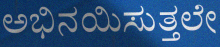
ಅಭಿನಯಿಸುತ್ತಲೇ